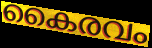
കൈരവം